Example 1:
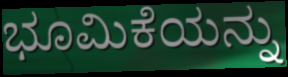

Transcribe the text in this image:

ಭೂಮಿಕೆಯನ್ನು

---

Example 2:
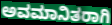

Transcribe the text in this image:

ಅವಮಾನಿತರಾಗಿ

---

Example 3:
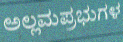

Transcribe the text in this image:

ಅಲ್ಲಮಪ್ರಭುಗಳ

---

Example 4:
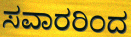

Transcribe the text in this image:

ಸವಾರರಿಂದ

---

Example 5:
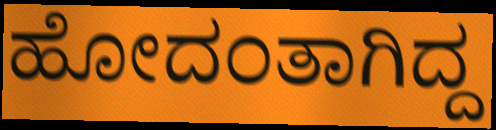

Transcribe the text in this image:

ಹೋದಂತಾಗಿದ್ದ